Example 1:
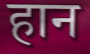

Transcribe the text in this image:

हान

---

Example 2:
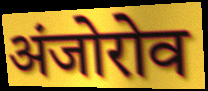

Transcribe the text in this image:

अंजोरोव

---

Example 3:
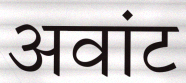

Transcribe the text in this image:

अवांट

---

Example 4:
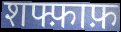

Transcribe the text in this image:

शफ्फ़ाफ़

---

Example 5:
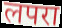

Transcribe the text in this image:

लपरा